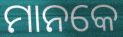
ମାନକେ